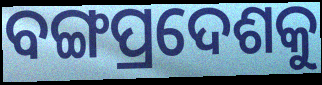
ବଙ୍ଗପ୍ରଦେଶକୁ